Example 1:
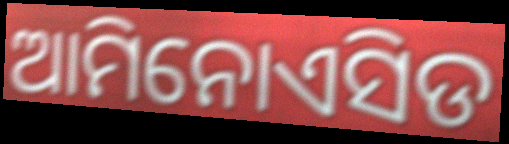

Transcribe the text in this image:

ଆମିନୋଏସିଡ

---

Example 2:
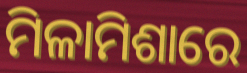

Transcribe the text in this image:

ମିଳାମିଶାରେ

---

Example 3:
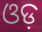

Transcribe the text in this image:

ଓଡ଼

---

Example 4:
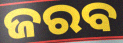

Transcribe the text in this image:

ଜରବ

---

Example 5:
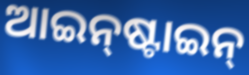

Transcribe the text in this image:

ଆଇନ୍‌ଷ୍ଟାଇନ୍